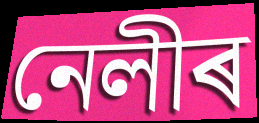
নেলীৰ